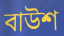
বাউশ